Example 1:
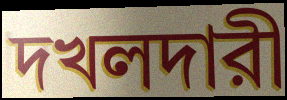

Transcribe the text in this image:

দখলদারী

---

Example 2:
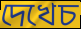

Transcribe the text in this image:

দেখেচ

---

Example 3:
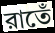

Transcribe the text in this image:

রাতেঁ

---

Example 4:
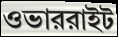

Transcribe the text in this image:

ওভাররাইট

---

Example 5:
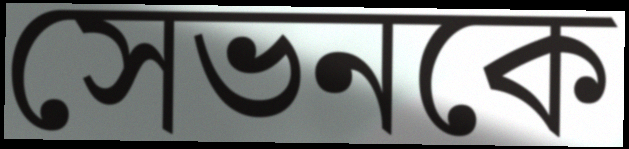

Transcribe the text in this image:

সেভনকে